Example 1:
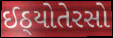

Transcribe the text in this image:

ઈઠ્યોતેરસો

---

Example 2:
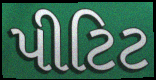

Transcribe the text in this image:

પીટિટ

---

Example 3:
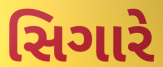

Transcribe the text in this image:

સિગારે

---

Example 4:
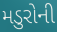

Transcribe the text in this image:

મડુરોની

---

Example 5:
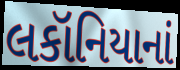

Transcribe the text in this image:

લકૉનિયાનાં